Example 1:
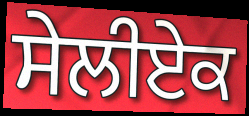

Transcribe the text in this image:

ਸੇਲੀਏਕ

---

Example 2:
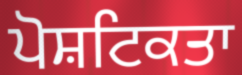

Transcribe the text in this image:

ਪੋਸ਼ਟਿਕਤਾ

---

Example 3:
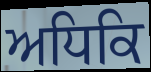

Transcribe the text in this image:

ਅਧਿਕਿ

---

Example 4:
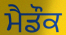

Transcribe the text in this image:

ਮੈਡੌਕ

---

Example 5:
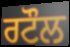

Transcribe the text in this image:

ਰਟੌਲ